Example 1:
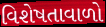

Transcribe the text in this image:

વિશેષતાવાળો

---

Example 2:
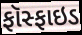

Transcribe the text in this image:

ફૉસ્ફાઇડ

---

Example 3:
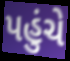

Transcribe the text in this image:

પહુંચે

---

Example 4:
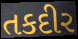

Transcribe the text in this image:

તકદીર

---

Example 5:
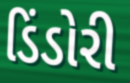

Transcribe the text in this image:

ડિંડોરી